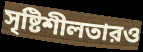
সৃষ্টিশীলতারও